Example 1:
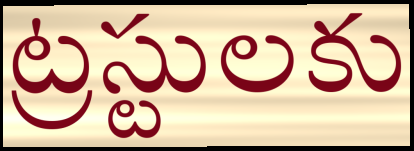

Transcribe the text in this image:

ట్రస్టులకు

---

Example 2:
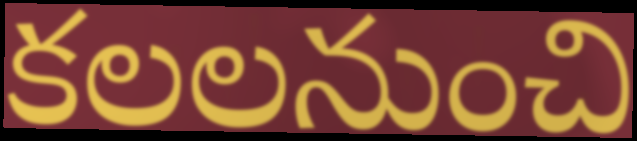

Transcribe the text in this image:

కలలనుంచి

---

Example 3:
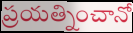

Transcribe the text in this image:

ప్రయత్నించానో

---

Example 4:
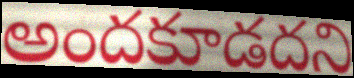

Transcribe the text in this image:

అందకూడదని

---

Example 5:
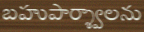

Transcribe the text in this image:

బహుపార్శ్వాలను